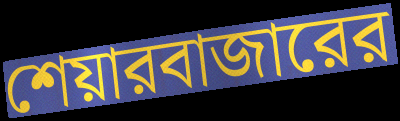
শেয়ারবাজারের